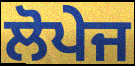
ਲੋਪੇਜ